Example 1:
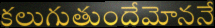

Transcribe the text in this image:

కలుగుతుందేమోననే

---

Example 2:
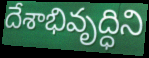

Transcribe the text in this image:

దేశాభివృద్ధిని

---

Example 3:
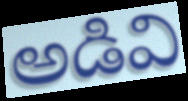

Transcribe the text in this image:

అడివి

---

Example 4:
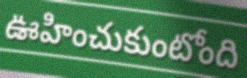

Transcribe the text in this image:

ఊహించుకుంటోంది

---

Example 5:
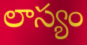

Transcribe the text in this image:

లాస్యం